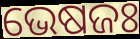
ଭେଷଜଃ